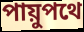
পায়ুপথে